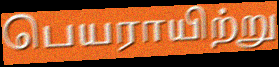
பெயராயிற்று